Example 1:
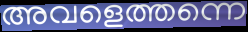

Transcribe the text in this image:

അവളെത്തന്നെ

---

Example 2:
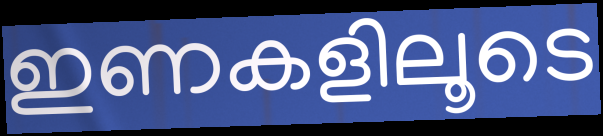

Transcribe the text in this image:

ഇണകളിലൂടെ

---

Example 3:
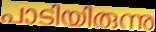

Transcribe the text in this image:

പാടിയിരുന്നു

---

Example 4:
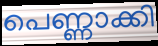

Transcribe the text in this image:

പെണ്ണാക്കി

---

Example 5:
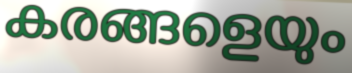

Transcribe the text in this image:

കരങ്ങളെയും